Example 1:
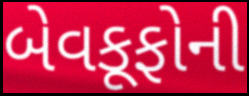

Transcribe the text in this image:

બેવકૂફોની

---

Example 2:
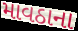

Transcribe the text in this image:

માવઠાના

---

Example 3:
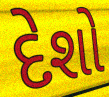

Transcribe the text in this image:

દેશો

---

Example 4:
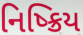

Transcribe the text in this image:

નિષ્ક્રિય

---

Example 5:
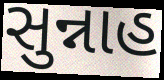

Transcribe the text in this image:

સુન્નાહ